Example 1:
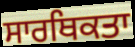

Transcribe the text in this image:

ਸਾਰਥਿਕਤਾ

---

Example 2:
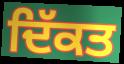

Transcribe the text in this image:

ਦਿੱਕਤ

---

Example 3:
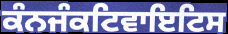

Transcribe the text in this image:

ਕੰਨਜੰਕਟਿਵਾਇਟਿਸ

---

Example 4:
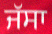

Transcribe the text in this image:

ਜੱਸਾ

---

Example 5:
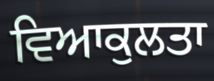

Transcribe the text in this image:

ਵਿਆਕੁਲਤਾ